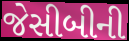
જેસીબીની